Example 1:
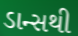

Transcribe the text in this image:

ડાન્સથી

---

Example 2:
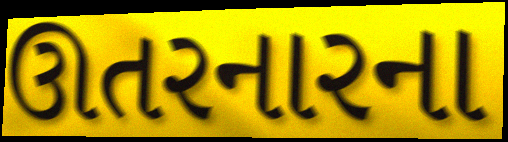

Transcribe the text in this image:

ઊતરનારના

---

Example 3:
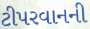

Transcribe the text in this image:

ટીપરવાનની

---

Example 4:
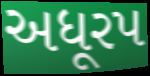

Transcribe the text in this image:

અધૂરપ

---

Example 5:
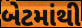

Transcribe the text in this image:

બેટમાંથી